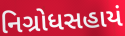
નિગ્રોધસહાયં